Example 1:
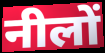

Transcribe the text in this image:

नीलों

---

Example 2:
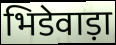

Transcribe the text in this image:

भिडेवाड़ा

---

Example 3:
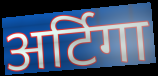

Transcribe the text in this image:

अर्टिगा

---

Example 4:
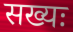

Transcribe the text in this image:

सख्यः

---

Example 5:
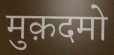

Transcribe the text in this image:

मुक़दमो